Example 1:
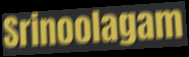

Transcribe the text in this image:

Srinoolagam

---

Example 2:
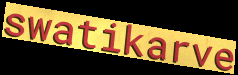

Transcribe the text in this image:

swatikarve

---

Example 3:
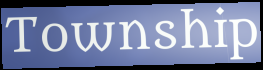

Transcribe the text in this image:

Township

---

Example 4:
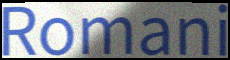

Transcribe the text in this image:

Romani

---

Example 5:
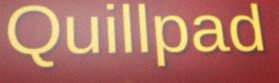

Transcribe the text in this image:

Quillpad